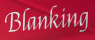
Blanking